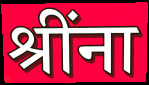
श्रींना